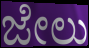
ಜೇಲು